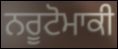
ਨਰੂਟੋਮਾਕੀ